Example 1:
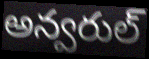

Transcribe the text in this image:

అన్వరుల్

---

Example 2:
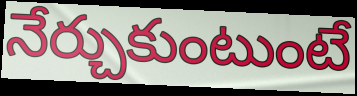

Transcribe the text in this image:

నేర్చుకుంటుంటే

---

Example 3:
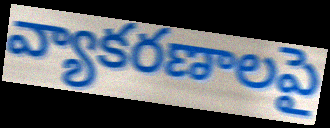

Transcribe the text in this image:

వ్యాకరణాలపై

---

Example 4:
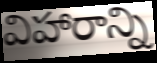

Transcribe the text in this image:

విహారాన్ని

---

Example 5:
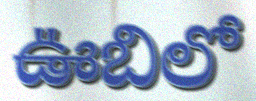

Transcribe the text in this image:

ఊబిలో